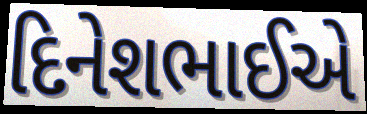
દિનેશભાઈએ